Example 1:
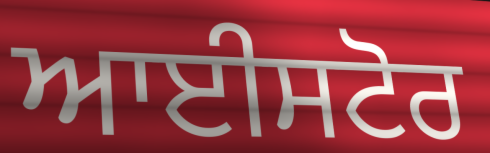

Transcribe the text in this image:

ਆਈਸਟੋਰ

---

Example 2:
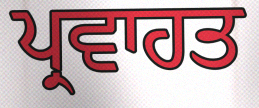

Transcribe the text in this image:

ਪ੍ਰਵਾਹਤ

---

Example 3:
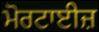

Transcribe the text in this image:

ਮੋਰਟਾਈਜ਼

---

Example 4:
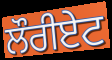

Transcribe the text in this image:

ਲੌਰੀਏਟ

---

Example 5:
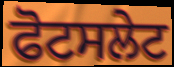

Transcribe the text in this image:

ਫੋਟਸਲੇਟ